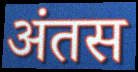
अंतस